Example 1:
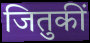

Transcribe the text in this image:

जितुकीं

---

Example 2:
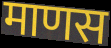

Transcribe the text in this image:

माणस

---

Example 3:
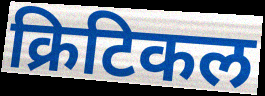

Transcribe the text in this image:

क्रिटिकल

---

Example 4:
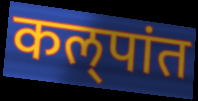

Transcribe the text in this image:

कल्पांत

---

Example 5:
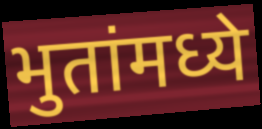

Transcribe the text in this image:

भुतांमध्ये